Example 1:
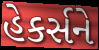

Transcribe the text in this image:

હેકર્સને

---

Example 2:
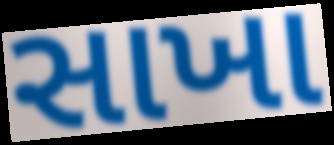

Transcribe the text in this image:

સાખા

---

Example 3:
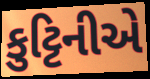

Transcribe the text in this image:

કુટ્ટિનીએ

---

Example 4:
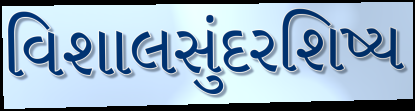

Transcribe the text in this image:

વિશાલસુંદરશિષ્ય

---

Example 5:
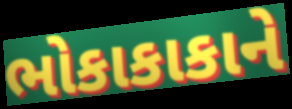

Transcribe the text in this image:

ભોકાકાકાને